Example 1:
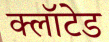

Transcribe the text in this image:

क्लॉटेड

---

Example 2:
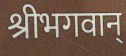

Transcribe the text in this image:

श्रीभगवान्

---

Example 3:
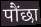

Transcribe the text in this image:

पौंछा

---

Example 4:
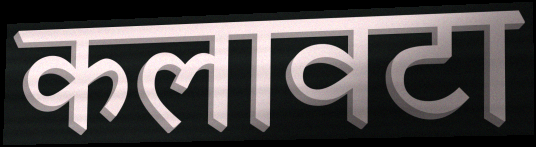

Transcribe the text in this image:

कलावटा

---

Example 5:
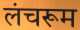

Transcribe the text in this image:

लंचरूम